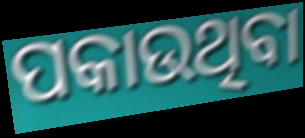
ପକାଉଥିବା